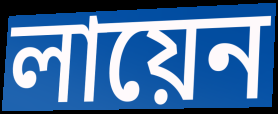
লায়েন